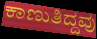
ಕಾಣುತಿದ್ದವು